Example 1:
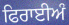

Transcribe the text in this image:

ਫਿਰਾਈਅੰ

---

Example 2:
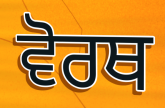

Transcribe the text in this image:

ਵੋਰਥ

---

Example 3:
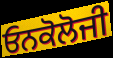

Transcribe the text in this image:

ਓਨਕੋਲੋਜੀ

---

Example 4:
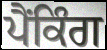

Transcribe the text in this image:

ਪੈਂਕਿੰਗ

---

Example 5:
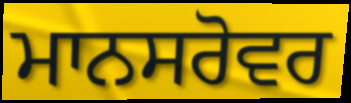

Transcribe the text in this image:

ਮਾਨਸਰੋਵਰ